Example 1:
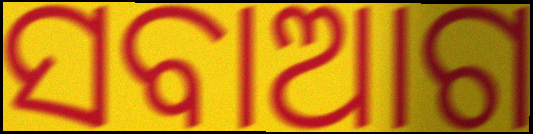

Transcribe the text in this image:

ସବାଆଗ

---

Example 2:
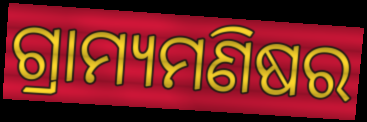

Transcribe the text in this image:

ଗ୍ରାମ୍ୟମଣିଷର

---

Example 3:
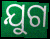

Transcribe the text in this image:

ଯୁଗ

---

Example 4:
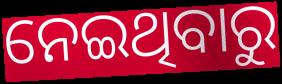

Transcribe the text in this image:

ନେଇଥିବାରୁ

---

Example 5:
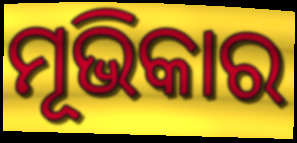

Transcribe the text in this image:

ମୂଭିକାର